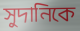
সুদানিকে